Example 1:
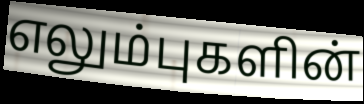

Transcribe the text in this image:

எலும்புகளின்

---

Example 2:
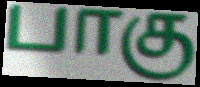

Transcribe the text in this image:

பாகு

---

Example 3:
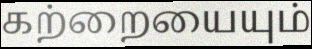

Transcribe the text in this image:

கற்றையையும்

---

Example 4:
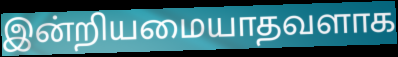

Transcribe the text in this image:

இன்றியமையாதவளாக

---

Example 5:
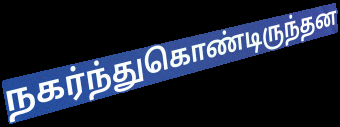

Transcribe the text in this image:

நகர்ந்துகொண்டிருந்தன